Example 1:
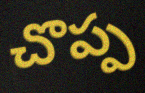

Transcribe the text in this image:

చొప్ప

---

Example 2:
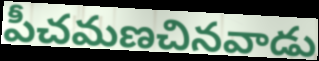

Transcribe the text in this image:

పీచమణచినవాడు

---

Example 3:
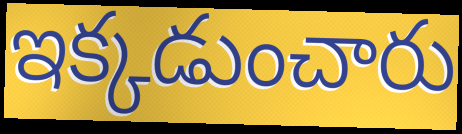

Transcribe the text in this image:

ఇక్కడుంచారు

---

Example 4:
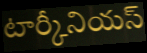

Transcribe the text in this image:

టార్కీనియస్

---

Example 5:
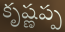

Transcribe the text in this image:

కృష్ణప్ప